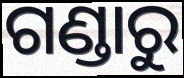
ଗଣ୍ଡାରୁ